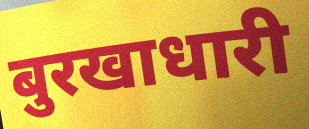
बुरखाधारी